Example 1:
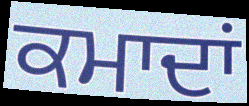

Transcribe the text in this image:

ਕਮਾਦਾਂ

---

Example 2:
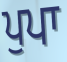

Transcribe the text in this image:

ਪੁਪਾ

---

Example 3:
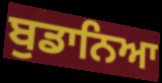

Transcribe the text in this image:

ਬੁਡਾਨਿਆ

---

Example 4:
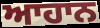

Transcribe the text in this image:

ਆਹਾਨ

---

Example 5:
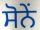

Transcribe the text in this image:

ਸੋਨੇਂ